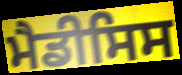
ਮੈਡੀਸਿਸ